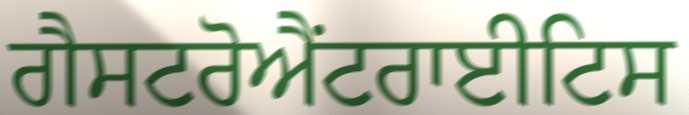
ਗੈਸਟਰੋਐਂਟਰਾਈਟਿਸ